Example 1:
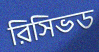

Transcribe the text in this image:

রিসিভড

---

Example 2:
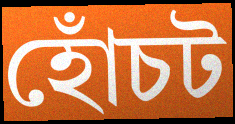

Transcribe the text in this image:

হোঁচট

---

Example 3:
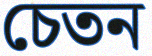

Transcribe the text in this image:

চেতন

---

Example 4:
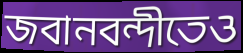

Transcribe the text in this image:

জবানবন্দীতেও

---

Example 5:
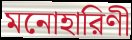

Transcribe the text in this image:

মনোহারিণী